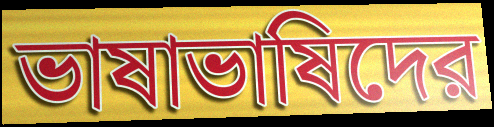
ভাষাভাষিদের